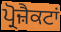
ਪ੍ਰੋਜ਼ੈਕਟਾਂ